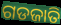
ଗଡଜାତି